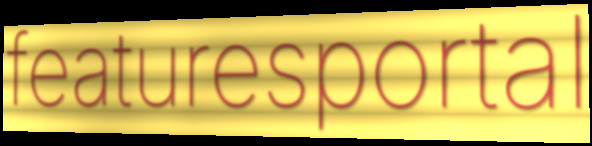
featuresportal